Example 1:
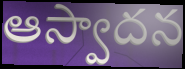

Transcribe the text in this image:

ఆస్వాదన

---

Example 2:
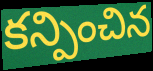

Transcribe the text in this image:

కన్పించిన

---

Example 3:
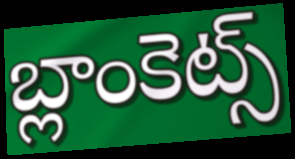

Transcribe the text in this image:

బ్లాంకెట్స్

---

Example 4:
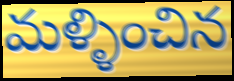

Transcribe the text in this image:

మళ్ళించిన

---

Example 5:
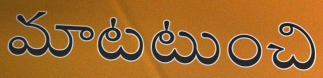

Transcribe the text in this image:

మాటటుంచి